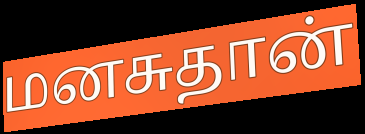
மனசுதான்